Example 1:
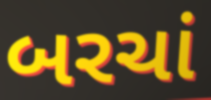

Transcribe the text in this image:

બરચાં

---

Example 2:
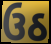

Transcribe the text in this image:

ઉઠ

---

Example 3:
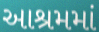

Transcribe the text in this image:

આશ્રમમાં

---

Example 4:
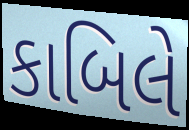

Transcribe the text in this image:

કાબિલે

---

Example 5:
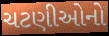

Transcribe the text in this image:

ચટણીઓનો